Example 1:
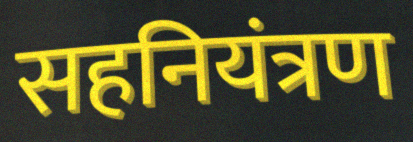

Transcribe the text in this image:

सहनियंत्रण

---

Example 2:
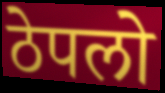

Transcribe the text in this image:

ठेपलो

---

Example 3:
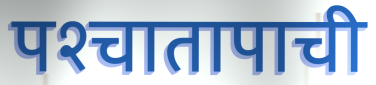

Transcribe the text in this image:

पश्चातापाची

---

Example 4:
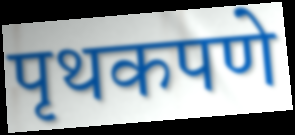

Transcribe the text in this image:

पृथकपणे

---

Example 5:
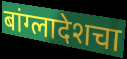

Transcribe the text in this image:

बांग्लादेशचा